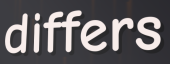
differs